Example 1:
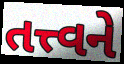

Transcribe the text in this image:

તત્ત્વને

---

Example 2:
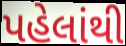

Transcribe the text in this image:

પહેલાંથી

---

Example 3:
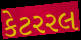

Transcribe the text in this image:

કેટરરલ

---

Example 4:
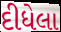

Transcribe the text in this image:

દીધેલા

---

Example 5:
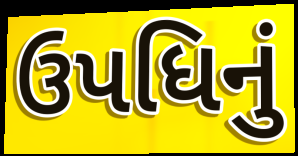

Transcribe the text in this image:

ઉપધિનું